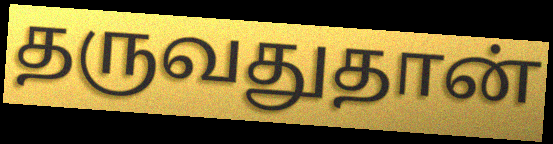
தருவதுதான்